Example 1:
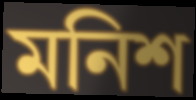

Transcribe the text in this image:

মনিশ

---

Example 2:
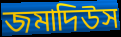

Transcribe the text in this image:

জমাদিউস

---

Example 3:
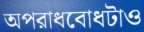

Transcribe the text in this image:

অপরাধবোধটাও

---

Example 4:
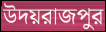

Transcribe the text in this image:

উদয়রাজপুর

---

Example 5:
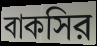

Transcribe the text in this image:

বাকসির